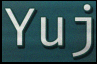
Yuj